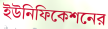
ইউনিফিকেশনের